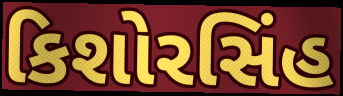
કિશોરસિંહ